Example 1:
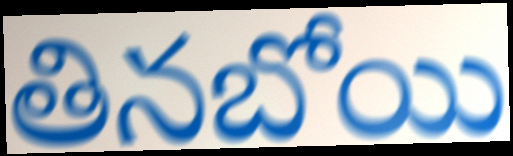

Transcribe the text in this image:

తినబోయి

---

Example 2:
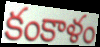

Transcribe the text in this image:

కంకాళం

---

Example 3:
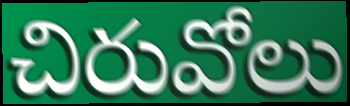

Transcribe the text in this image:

చిరువోలు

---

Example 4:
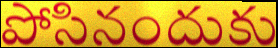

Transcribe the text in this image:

పోసినందుకు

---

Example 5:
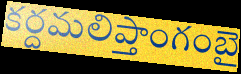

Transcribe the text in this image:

కర్దమలిప్తాంగంబై